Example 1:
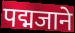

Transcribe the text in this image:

पद्मजाने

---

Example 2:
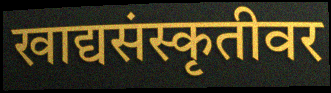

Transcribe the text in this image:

खाद्यसंस्कृतीवर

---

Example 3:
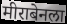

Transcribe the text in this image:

मीराबेनला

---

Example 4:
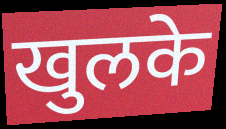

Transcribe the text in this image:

खुलके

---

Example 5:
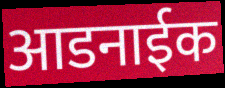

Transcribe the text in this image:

आडनाईक